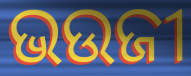
ଭଉଜୀ